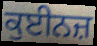
ਕੁਈਨਜ਼